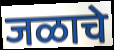
जळाचे